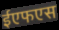
ईएफएस